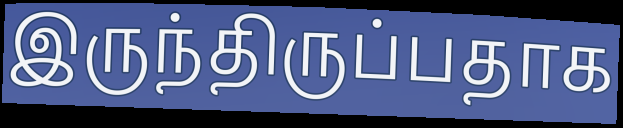
இருந்திருப்பதாக